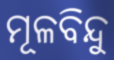
ମୂଳବିନ୍ଦୁ